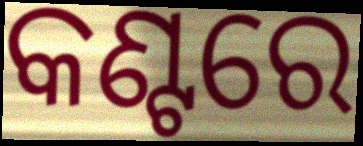
କଣ୍ଟରେ